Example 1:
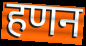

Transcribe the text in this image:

हणन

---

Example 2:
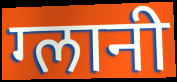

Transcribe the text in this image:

ग्लानी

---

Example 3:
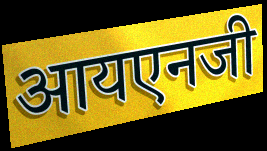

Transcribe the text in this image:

आयएनजी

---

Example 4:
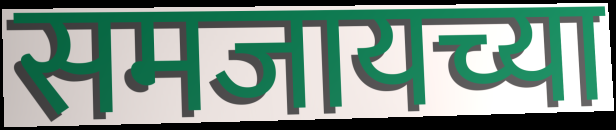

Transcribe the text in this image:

समजायच्या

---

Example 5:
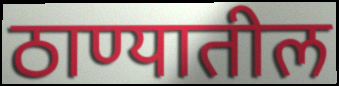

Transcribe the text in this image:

ठाण्यातील